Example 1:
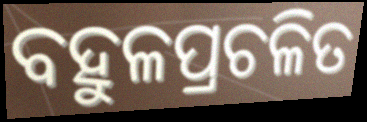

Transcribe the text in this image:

ବହୁଳପ୍ରଚଳିତ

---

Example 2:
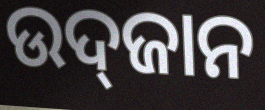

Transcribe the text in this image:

ଉଦ୍‌ଜାନ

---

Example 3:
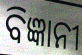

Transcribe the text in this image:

ବିଜ୍ଞାନୀ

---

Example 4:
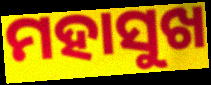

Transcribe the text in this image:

ମହାସୁଖ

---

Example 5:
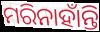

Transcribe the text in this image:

ମରିନାହାଁନ୍ତି